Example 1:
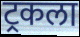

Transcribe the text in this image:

ट्रकला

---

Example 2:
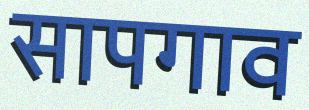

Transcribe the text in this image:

सापगाव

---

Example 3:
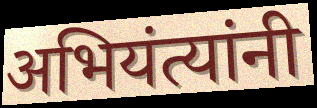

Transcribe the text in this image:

अभियंत्यांनी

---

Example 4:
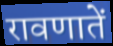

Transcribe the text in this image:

रावणातें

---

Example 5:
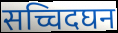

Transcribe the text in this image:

सच्चिदघन